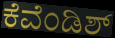
ಕೆವೆಂಡಿಶ್